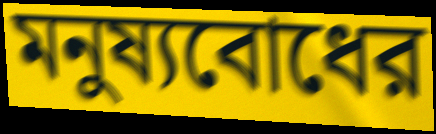
মনুষ্যবোধের